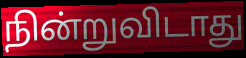
நின்றுவிடாது